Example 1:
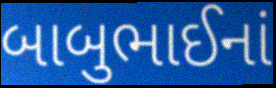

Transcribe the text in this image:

બાબુભાઈનાં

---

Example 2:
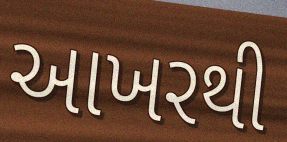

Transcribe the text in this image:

આખરથી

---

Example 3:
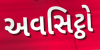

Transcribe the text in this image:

અવસિટ્ઠો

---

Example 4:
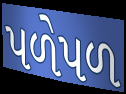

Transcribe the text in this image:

પળેપળ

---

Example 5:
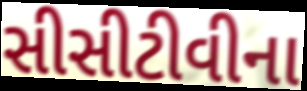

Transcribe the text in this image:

સીસીટીવીના